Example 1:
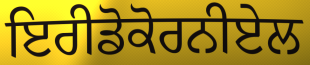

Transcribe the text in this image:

ਇਰੀਡੋਕੋਰਨੀਏਲ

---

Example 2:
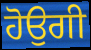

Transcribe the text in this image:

ਹੋਉਗੀ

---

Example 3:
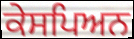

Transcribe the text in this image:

ਕੇਸਪਿਅਨ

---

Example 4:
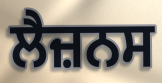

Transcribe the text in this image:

ਲੈਜ਼ਨਸ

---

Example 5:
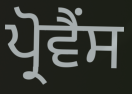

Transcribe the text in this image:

ਪ੍ਰੋਵੈਂਸ